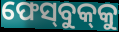
ଫେସ୍‌ବୁକ୍‌କୁ